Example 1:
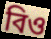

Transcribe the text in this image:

বিও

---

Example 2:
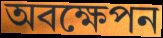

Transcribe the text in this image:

অবক্ষেপন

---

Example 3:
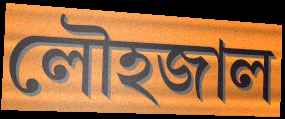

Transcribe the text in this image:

লৌহজাল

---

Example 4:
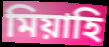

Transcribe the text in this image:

মিয়াহি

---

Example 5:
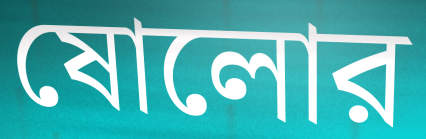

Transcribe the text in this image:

ষোলোর